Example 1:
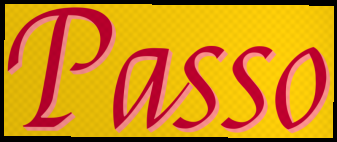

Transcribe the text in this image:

Passo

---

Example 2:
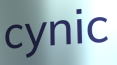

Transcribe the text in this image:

cynic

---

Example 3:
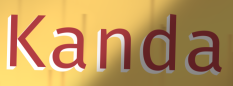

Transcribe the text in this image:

Kanda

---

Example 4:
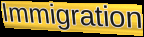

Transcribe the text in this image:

Immigration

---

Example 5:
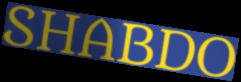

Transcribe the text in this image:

SHABDO